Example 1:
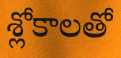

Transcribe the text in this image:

శ్లోకాలతో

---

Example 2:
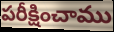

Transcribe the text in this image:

పరీక్షించాము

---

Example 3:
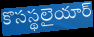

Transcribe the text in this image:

కొసస్థలైయార్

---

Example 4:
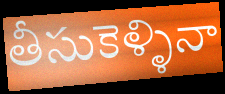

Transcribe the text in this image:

తీసుకెళ్ళినా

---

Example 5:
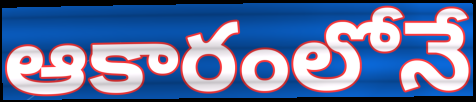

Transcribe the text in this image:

ఆకారంలోనే